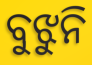
ବୁଝୁନି